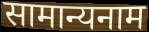
सामान्यनाम